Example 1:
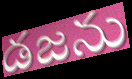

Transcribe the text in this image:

డజను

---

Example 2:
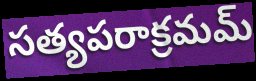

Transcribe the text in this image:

సత్యపరాక్రమమ్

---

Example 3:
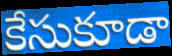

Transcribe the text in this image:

కేసుకూడా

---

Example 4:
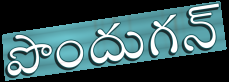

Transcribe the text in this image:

పొందుగన్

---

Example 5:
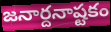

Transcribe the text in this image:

జనార్దనాష్టకం